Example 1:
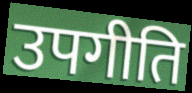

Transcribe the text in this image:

उपगीति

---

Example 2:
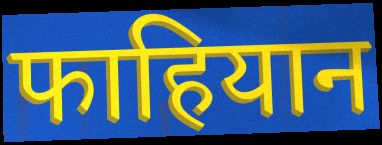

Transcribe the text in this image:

फाहियान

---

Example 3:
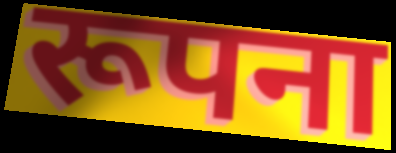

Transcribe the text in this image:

रूपना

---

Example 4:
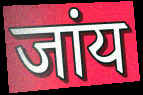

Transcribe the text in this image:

जांय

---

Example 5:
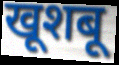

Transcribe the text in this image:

खूशबू